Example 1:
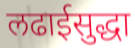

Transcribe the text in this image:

लढाईसुद्धा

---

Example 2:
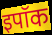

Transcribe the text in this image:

इपॉक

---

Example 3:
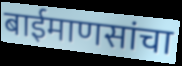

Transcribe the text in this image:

बाईमाणसांचा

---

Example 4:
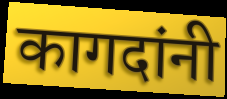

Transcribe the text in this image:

कागदांनी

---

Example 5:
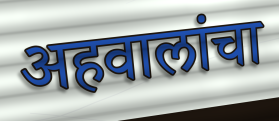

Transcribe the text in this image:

अहवालांचा